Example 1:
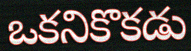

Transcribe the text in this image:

ఒకనికొకడు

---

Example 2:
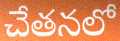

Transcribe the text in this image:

చేతనలో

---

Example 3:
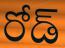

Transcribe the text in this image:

రోడ్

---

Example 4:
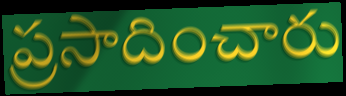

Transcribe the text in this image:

ప్రసాదించారు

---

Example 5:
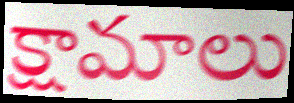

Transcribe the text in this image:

క్షామాలు